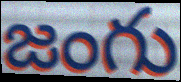
జంగు